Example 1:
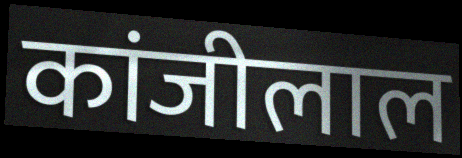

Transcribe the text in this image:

कांजीलाल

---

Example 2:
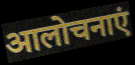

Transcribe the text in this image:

आलोचनाएं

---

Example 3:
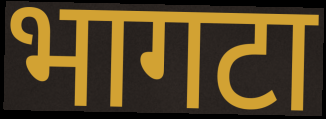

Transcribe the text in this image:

भागटा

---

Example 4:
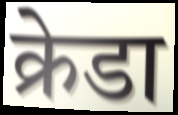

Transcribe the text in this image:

क्रेडा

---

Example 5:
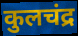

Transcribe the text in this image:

कुलचंद्र